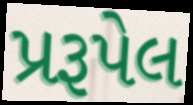
પ્રરૂપેલ